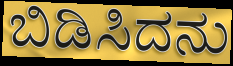
ಬಿಡಿಸಿದನು